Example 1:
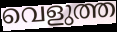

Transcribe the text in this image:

വെളുത്ത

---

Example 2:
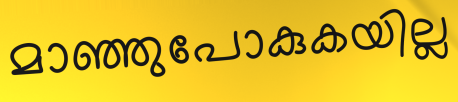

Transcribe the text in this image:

മാഞ്ഞുപോകുകയില്ല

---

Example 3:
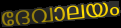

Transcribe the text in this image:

ദേവാലയം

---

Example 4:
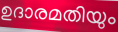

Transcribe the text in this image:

ഉദാരമതിയും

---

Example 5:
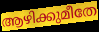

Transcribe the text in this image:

ആഴിക്കുമീതേ